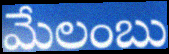
మేలంబు